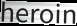
heroin